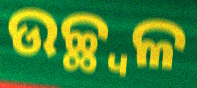
ଉଚ୍ଛ୍ଵଳ